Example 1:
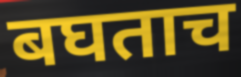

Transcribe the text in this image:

बघताच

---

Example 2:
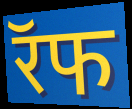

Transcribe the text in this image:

रॅफ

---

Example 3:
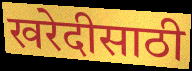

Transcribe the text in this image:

खरेदीसाठी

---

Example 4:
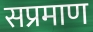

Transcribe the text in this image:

सप्रमाण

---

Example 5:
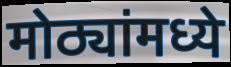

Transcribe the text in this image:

मोठ्यांमध्ये